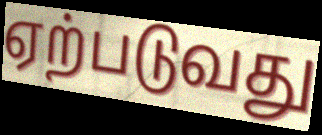
ஏற்படுவது